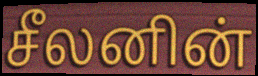
சீலனின்